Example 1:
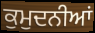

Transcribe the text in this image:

ਕੁਮੁਦਨੀਆਂ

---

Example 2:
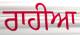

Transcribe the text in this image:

ਰਾਹੀਆ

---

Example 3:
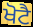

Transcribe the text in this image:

ਖੋਟੈ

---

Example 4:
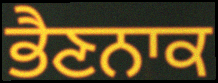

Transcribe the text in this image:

ਭੈਣਨਾਕ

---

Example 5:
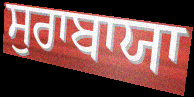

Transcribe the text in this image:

ਸੁਰਾਬਾਯਾ